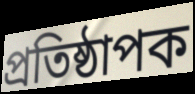
প্ৰতিষ্ঠাপক